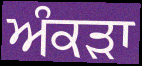
ਅੰਕੜਾ